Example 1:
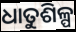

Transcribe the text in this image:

ଧାତୁଶିଳ୍ପ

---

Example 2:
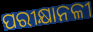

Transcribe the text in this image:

ପରୀକ୍ଷାନଳୀ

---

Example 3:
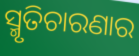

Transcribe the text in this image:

ସ୍ମୃତିଚାରଣାର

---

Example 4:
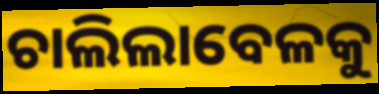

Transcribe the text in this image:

ଚାଲିଲାବେଳକୁ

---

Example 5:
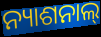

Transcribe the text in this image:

ନ୍ୟାଶନାଲ୍